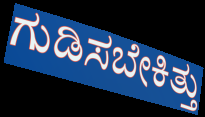
ಗುಡಿಸಬೇಕಿತ್ತು